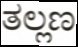
ತಲ್ಲಣ